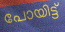
പോയിട്ട്